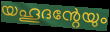
യഹൂദന്റേയും